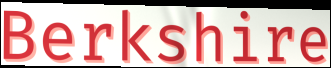
Berkshire